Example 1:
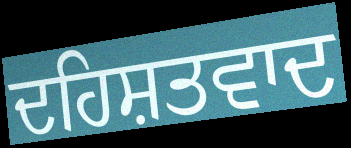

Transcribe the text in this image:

ਦਹਿਸ਼ਤਵਾਦ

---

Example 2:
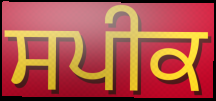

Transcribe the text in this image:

ਸਪੀਕ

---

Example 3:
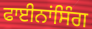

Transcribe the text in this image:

ਫਾਈਨਾਂਸਿੰਗ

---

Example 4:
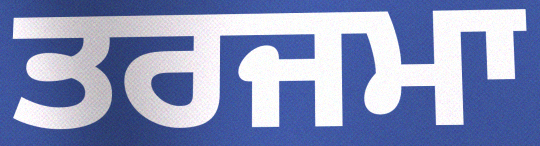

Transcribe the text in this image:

ਤਰਜਮਾ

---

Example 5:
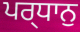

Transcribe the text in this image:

ਪਰ੍ਧਾਨੁ